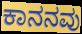
ಕಾನನವು